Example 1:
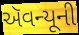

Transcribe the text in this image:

ઍવન્યૂની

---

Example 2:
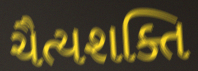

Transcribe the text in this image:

ચૈત્યશક્તિ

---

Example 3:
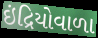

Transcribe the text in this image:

ઇંદ્રિયોવાળા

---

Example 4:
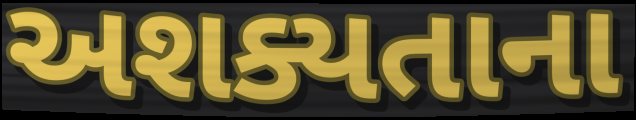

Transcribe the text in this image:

અશક્યતાના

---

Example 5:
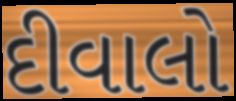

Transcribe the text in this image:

દીવાલો